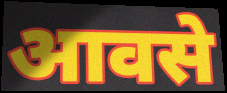
आवसे